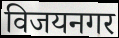
विजयनगर